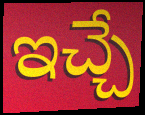
ఇచ్చే